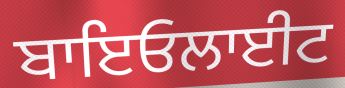
ਬਾਇਓਲਾਈਟ